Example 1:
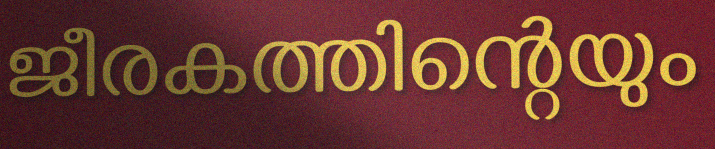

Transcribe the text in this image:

ജീരകത്തിന്റെയും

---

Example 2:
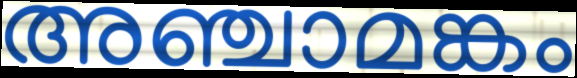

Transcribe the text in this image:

അഞ്ചാമങ്കം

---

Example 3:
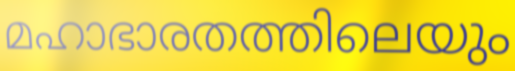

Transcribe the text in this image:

മഹാഭാരതത്തിലെയും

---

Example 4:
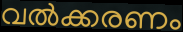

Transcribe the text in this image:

വൽക്കരണം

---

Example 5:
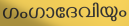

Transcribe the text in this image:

ഗംഗാദേവിയും